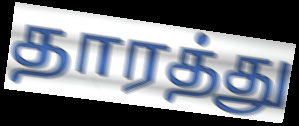
தாரத்து